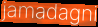
jamadagni